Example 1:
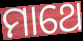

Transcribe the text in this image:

ମାଥେ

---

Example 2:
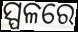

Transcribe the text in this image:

ସ୍ପଳରେ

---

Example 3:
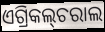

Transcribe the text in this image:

ଏଗ୍ରିକଲ୍‌ଚରାଲ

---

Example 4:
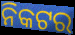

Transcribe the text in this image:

ନିକଟର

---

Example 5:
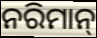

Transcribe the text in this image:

ନରିମାନ୍